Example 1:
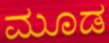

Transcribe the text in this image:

ಮೂಡ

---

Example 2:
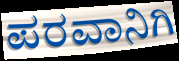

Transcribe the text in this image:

ಪರವಾನಿಗಿ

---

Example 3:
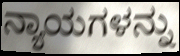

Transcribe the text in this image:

ನ್ಯಾಯಗಳನ್ನು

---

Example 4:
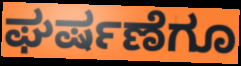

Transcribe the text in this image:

ಘರ್ಷಣೆಗೂ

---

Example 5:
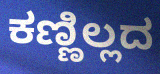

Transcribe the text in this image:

ಕಣ್ಣಿಲ್ಲದ